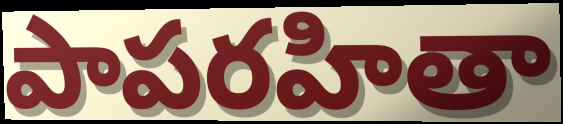
పాపరహితా